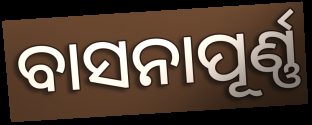
ବାସନାପୂର୍ଣ୍ଣ